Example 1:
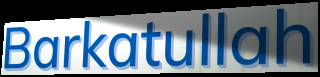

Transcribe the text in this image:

Barkatullah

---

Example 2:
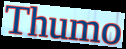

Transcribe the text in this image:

Thumo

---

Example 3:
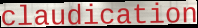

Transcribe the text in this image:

claudication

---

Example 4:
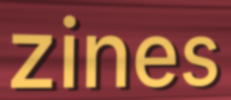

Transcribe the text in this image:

zines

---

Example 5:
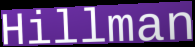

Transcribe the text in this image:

Hillman